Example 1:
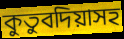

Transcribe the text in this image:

কুতুবদিয়াসহ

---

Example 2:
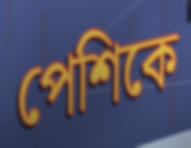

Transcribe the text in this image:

পেশিকে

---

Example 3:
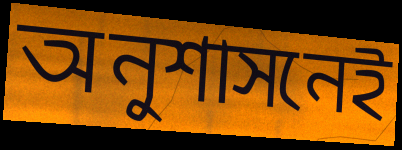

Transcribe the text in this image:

অনুশাসনেই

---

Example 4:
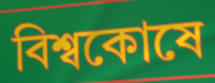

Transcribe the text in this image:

বিশ্বকোষে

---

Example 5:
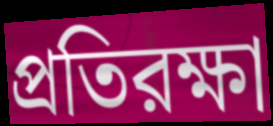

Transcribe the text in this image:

প্রতিরক্ষা